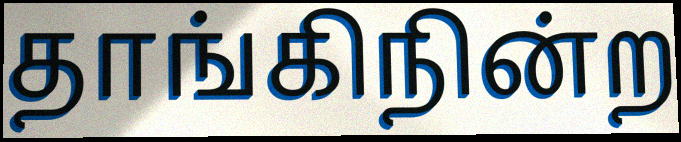
தாங்கிநின்ற